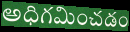
అధిగమించడం